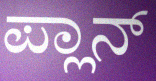
ಪ್ಲಾನ್